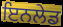
ਇਨਲੇਡ